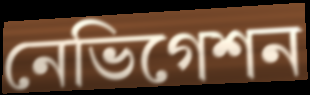
নেভিগেশন